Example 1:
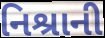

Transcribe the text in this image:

નિશ્રાની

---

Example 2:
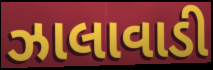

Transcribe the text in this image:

ઝાલાવાડી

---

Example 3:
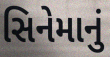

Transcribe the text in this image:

સિનેમાનું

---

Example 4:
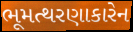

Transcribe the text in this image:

ભૂમત્થરણાકારેન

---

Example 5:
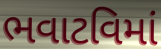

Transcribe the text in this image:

ભવાટવિમાં